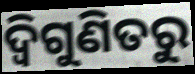
ଦ୍ୱିଗୁଣିତରୁ